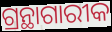
ଗ୍ରନ୍ଥାଗାରୀକ